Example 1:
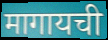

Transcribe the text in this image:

मागायची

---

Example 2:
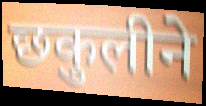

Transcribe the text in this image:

छकुलीने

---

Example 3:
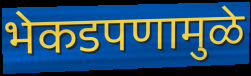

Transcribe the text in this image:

भेकडपणामुळे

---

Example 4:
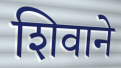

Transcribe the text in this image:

शिवाने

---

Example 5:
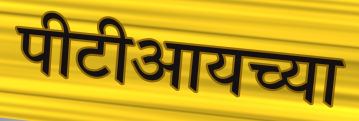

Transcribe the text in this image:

पीटीआयच्या